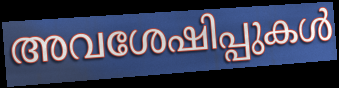
അവശേഷിപ്പുകൾ